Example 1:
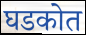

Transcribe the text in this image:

घडकोत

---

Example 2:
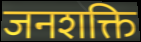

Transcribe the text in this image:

जनशक्ति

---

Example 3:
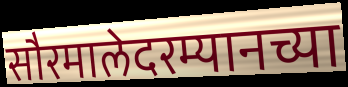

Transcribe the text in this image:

सौरमालेदरम्यानच्या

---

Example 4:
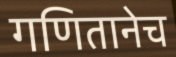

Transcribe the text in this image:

गणितानेच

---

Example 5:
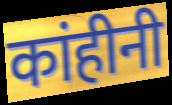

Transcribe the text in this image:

कांहीनी